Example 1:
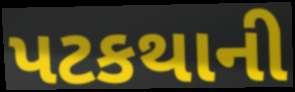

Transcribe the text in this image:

પટકથાની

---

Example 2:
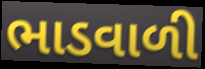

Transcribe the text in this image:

ભાડવાળી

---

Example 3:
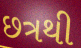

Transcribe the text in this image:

છત્રથી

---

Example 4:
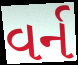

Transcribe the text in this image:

વર્ન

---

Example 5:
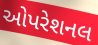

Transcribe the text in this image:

ઓપરેશનલ